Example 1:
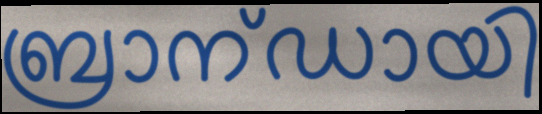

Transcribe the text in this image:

ബ്രാന്ഡായി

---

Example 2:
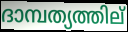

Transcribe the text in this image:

ദാമ്പത്യത്തില്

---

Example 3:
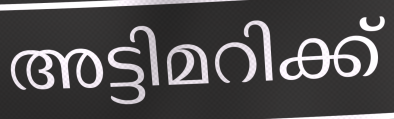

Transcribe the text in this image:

അട്ടിമറിക്ക്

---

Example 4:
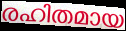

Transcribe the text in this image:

രഹിതമായ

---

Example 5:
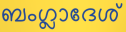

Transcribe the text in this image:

ബംഗ്ലാദേശ്